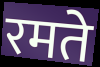
रमते